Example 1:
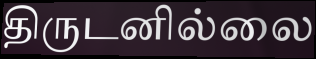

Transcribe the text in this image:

திருடனில்லை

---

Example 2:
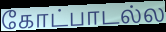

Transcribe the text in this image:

கோட்பாடல்ல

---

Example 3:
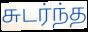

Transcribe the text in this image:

சுடர்ந்த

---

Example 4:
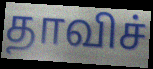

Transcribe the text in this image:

தாவிச்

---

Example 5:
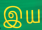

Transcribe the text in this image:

இய